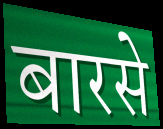
बारसे